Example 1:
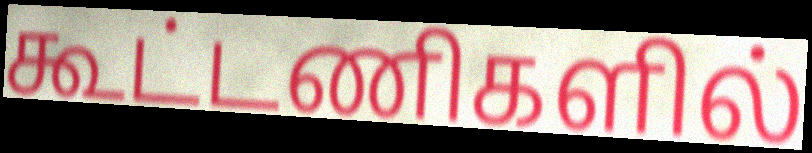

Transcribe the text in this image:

கூட்டணிகளில்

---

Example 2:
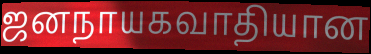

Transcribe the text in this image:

ஜனநாயகவாதியான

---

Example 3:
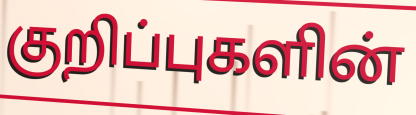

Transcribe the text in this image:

குறிப்புகளின்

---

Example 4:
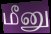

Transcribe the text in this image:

மீனு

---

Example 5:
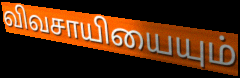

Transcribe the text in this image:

விவசாயியையும்